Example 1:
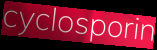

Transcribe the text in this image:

cyclosporin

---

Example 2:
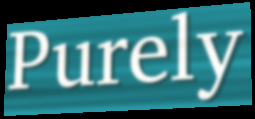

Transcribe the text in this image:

Purely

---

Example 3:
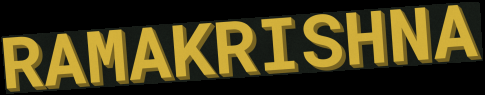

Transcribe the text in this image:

RAMAKRISHNA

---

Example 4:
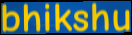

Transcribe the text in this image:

bhikshu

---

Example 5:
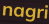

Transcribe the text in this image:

nagri